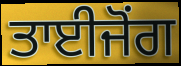
ਤਾਈਜੋਂਗ